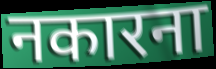
नकारना